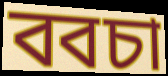
ববচা